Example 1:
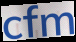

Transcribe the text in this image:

cfm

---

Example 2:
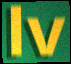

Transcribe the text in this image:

lv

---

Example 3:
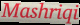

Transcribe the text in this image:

Mashriqi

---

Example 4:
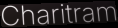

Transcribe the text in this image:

Charitram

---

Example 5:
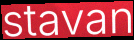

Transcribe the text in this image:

stavan